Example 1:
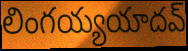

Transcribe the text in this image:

లింగయ్యయాదవ్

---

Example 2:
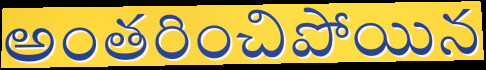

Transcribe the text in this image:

అంతరించిపోయిన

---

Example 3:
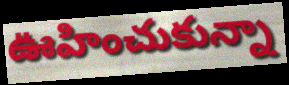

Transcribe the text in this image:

ఊహించుకున్నా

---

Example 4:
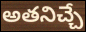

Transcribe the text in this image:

అతనిచ్చే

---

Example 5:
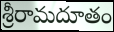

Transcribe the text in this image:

శ్రీరామదూతం